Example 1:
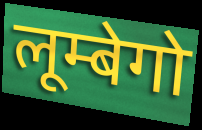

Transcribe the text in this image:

लूम्बेगो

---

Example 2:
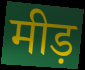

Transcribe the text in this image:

मीड़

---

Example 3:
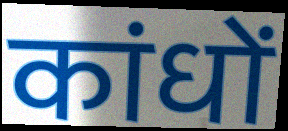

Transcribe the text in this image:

कांधों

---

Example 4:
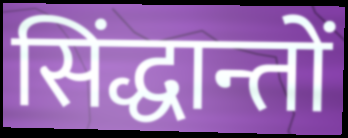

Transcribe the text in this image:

सिंद्धान्तों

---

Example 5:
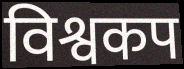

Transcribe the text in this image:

विश्वकप